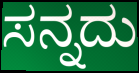
ಸನ್ನದು